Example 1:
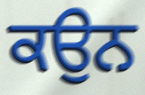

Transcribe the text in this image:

ਕਉਨ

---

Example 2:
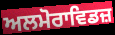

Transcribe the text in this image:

ਅਲਮੋਰਾਵਿਡਜ਼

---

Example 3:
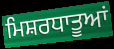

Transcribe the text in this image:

ਮਿਸ਼ਰਧਾਤੂਆਂ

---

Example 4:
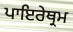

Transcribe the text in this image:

ਪਾਇਰੇਥ੍ਰਮ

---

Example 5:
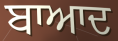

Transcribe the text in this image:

ਬਾਆਦ